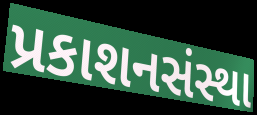
પ્રકાશનસંસ્થા